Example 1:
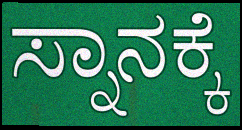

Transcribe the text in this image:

ಸ್ನಾನಕ್ಕೆ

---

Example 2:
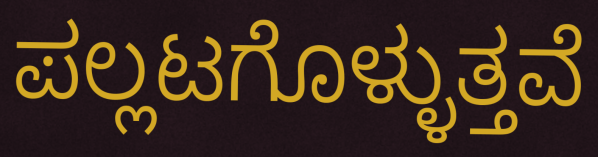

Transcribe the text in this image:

ಪಲ್ಲಟಗೊಳ್ಳುತ್ತವೆ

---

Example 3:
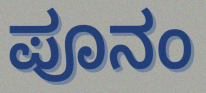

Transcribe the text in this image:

ಪೂನಂ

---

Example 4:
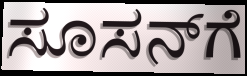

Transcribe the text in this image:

ಸೂಸನ್‌ಗೆ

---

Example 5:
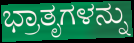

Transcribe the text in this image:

ಭ್ರಾತೃಗಳನ್ನು